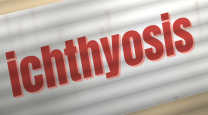
ichthyosis